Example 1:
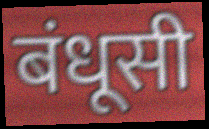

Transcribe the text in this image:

बंधूसी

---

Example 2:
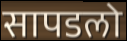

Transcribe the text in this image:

सापडलो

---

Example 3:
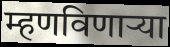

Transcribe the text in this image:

म्हणविणाऱ्या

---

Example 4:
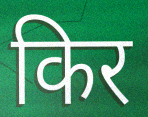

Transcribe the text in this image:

किर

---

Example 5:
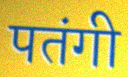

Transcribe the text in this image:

पतंगी